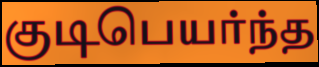
குடிபெயர்ந்த